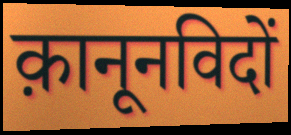
क़ानूनविदों